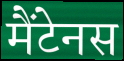
मैंटेनस